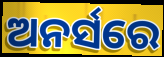
ଅନର୍ସରେ